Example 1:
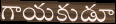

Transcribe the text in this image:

గాయకుడూ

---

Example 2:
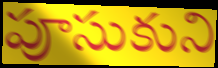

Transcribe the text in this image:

పూసుకుని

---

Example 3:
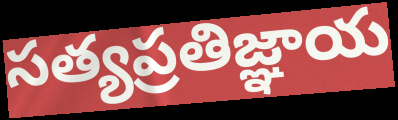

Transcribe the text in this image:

సత్యప్రతిజ్ఞాయ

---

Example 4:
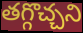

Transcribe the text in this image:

తగ్గొచ్చని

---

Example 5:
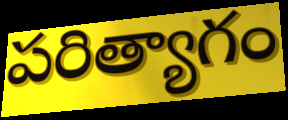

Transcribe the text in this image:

పరిత్యాగం